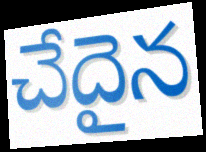
చేదైన